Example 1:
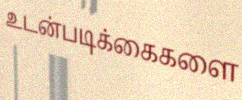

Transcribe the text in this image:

உடன்படிக்கைகளை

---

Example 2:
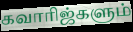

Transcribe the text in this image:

கவாரிஜ்களும்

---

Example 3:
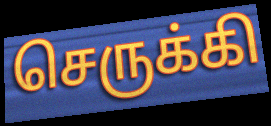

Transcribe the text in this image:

செருக்கி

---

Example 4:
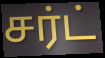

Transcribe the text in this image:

சர்ட்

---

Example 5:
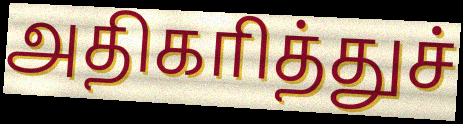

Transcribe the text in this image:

அதிகரித்துச்